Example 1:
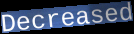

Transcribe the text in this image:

Decreased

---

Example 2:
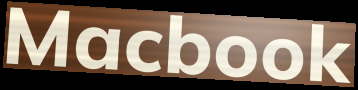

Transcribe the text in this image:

Macbook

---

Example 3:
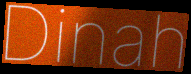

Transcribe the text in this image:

Dinah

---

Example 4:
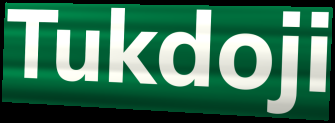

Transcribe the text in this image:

Tukdoji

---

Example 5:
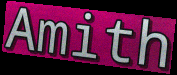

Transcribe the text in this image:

Amith